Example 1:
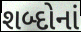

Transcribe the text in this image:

શબ્દોનાં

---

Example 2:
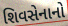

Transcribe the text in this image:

શિવસેનાનો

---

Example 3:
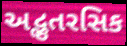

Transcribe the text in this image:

અદ્ભુતરસિક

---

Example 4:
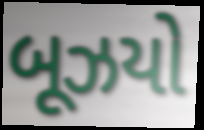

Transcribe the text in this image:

બૂઝયો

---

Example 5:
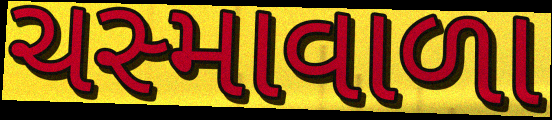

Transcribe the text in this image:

ચસ્માવાળા